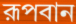
রূপবান